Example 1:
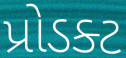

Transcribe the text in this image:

પ્રોડક્ટ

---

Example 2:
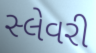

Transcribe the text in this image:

સ્લેવરી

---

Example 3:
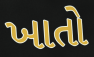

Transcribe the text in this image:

ખાતો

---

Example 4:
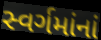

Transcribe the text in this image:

સ્વર્ગમાંનાં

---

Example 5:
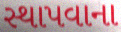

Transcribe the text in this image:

સ્થાપવાના